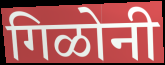
गिळोनी